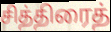
சித்திரைத்